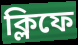
ক্লিফে